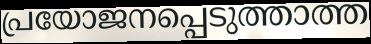
പ്രയോജനപ്പെടുത്താത്ത